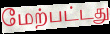
மேற்பட்டது